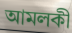
আমলকী